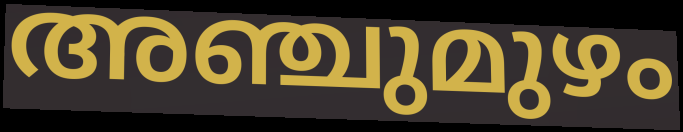
അഞ്ചുമുഴം